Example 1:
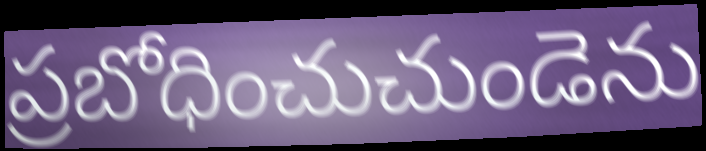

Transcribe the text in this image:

ప్రబోధించుచుండెను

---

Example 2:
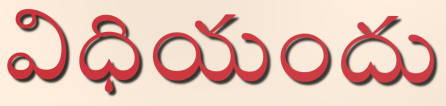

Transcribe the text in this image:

విధియందు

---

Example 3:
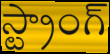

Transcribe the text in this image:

స్ట్రాంగ్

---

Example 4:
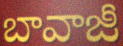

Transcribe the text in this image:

బావాజీ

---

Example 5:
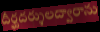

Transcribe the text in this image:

దీర్ఘదర్శులద్వారాను